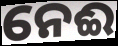
ନେଈ